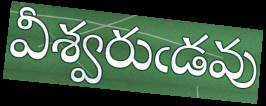
వీశ్వరుఁడవు